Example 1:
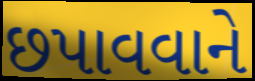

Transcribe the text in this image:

છપાવવાને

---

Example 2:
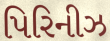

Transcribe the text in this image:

પિરિનીઝ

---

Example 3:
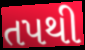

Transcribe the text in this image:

તપથી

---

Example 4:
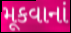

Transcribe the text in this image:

મૂકવાનાં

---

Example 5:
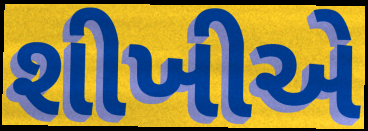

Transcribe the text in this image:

શીખીએ